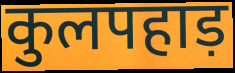
कुलपहाड़